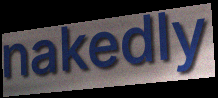
nakedly